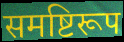
समष्टिरूप